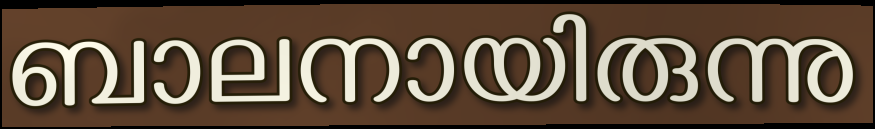
ബാലനായിരുന്നു